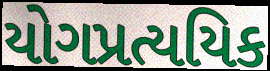
યોગપ્રત્યયિક